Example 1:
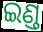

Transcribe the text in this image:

ଇଣ୍ଡ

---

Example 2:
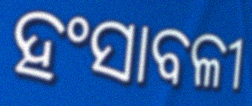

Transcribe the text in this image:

ହଂସାବଳୀ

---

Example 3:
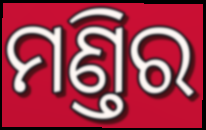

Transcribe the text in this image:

ମଣ୍ତିର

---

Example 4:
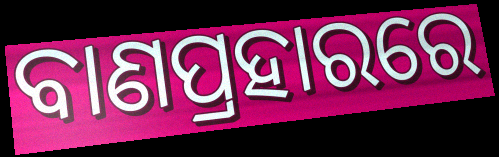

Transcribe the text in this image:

ବାଣପ୍ରହାରରେ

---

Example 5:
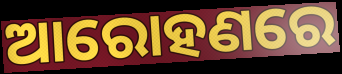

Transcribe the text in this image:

ଆରୋହଣରେ